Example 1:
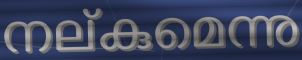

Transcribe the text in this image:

നല്‌കുമെന്നു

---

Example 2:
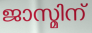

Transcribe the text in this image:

ജാസ്മിന്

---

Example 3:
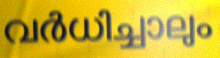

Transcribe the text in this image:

വർധിച്ചാലും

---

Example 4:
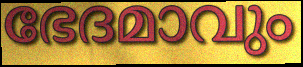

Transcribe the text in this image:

ഭേദമാവും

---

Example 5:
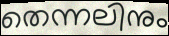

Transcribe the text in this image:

തെന്നലിനും